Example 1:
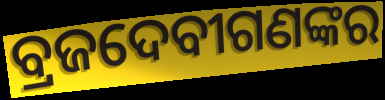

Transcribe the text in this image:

ବ୍ରଜଦେବୀଗଣଙ୍କର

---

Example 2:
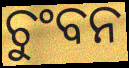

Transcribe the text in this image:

ଚୁଂବନ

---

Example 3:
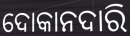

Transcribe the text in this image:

ଦୋକାନଦାରି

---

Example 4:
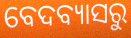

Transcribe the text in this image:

ବେଦବ୍ୟାସରୁ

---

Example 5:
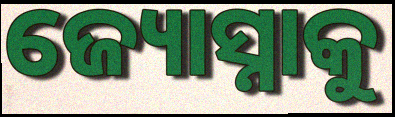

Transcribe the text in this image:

ଜ୍ୟୋସ୍ନାକୁ